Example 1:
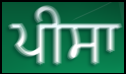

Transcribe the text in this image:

ਪੀਸਾ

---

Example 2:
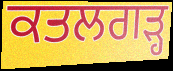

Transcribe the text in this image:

ਕਤਲਗੜ੍ਹ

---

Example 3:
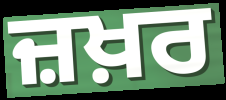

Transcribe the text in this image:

ਜ਼ਖ਼ਰ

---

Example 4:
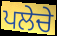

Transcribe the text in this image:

ਪਲੇਚੇ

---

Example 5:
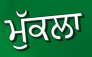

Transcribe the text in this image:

ਮੁੱਕਲਾ